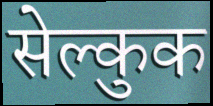
सेल्कुक